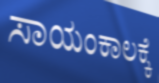
ಸಾಯಂಕಾಲಕ್ಕೆ